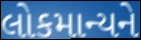
લોકમાન્યને